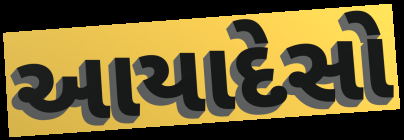
આયાદેસો